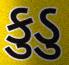
કુડુ